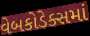
વેબકોડેક્સમાં